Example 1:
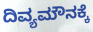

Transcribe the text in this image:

ದಿವ್ಯಮೌನಕ್ಕೆ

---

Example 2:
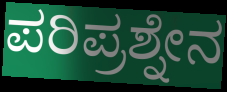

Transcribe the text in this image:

ಪರಿಪ್ರಶ್ನೇನ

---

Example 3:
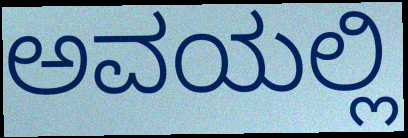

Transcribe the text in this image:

ಅವಯಲ್ಲಿ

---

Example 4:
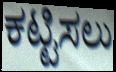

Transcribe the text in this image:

ಕಟ್ಟಿಸಲು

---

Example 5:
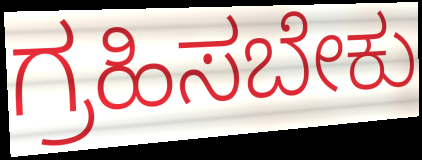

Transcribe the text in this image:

ಗ್ರಹಿಸಬೇಕು